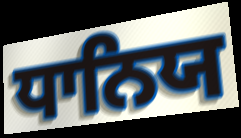
ਧਾਨਿਯ